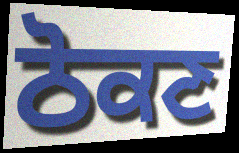
ਠੋਕਣ